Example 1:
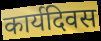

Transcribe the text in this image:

कार्यदिवस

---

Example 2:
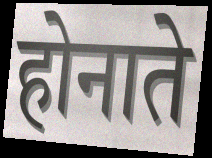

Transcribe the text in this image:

होनाते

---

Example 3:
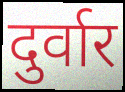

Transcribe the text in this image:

दुर्वार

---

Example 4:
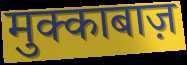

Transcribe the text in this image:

मुक्काबाज़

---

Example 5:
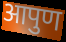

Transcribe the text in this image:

आपुण